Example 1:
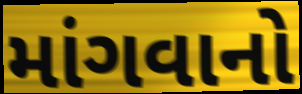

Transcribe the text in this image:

માંગવાનો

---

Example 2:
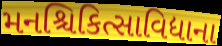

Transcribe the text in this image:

મનશ્ચિકિત્સાવિદ્યાના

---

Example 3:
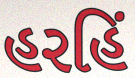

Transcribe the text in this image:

હરહિં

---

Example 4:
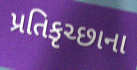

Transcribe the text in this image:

પ્રતિકૃચ્છાના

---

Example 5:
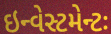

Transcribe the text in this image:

ઇન્વેસ્ટમેન્ટઃ